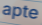
apte